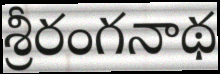
శ్రీరంగనాథ